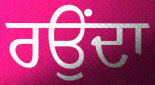
ਰਉਂਦਾ